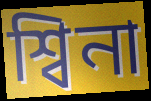
শ্বিনা